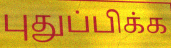
புதுப்பிக்க